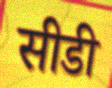
सीडी